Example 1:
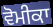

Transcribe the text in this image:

ਵੋਮੀਕਾ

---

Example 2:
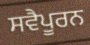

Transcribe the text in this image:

ਸਵੈਪੂਰਨ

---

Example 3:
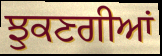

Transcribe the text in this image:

ਝੁਕਣਗੀਆਂ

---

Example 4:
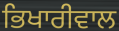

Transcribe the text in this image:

ਭਿਖਾਰੀਵਾਲ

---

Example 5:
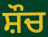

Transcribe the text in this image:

ਸ਼ੌਚ